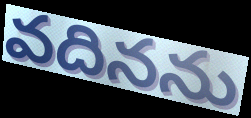
వదినను